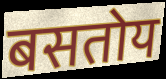
बसतोय